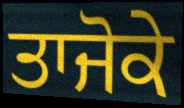
ਤਾਜੋਕੇ